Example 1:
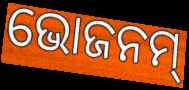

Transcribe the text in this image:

ଭୋଜନମ୍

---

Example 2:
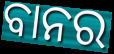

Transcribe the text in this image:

ବାନର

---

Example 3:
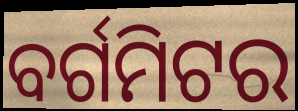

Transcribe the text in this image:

ବର୍ଗମିଟର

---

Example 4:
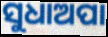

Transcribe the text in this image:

ସୁଧାଅପା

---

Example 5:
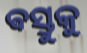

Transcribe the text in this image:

ଵସ୍ତୁକୁ